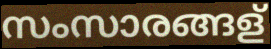
സംസാരങ്ങള്